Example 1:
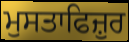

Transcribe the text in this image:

ਮੁਸਤਾਫਿਜ਼ੁਰ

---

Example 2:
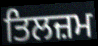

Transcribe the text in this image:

ਤਿਲਜ਼ਮ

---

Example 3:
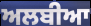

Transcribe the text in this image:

ਅਲਬੀਆ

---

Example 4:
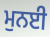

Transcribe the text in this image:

ਮੁਨਈ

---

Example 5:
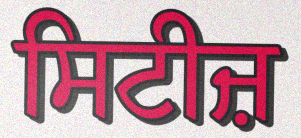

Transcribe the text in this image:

ਸਿਟੀਜ਼